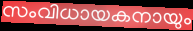
സംവിധായകനായും